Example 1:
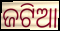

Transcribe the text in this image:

ଜଟିଆ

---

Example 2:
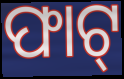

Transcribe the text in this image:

ଫାଟ୍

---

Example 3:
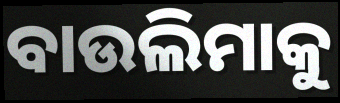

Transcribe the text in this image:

ବାଉଲିମାକୁ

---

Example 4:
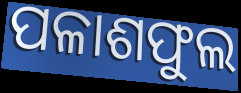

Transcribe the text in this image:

ପଳାଶଫୁଲ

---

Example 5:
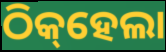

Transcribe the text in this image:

ଠିକ୍‌ହେଲା